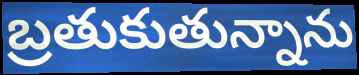
బ్రతుకుతున్నాను